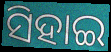
ସିହାଇ